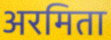
अरमिता